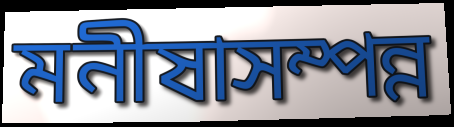
মনীষাসম্পন্ন